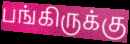
பங்கிருக்கு